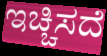
ಇಚ್ಚಿಸದೆ